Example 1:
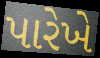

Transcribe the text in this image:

પારેખે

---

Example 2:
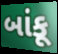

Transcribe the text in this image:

બાંકૂ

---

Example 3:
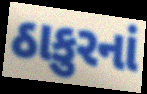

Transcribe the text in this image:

ઠાકુરનાં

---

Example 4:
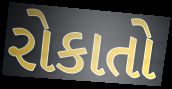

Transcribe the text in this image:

રોકાતો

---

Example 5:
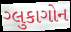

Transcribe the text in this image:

ગ્લુકાગોન